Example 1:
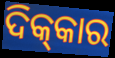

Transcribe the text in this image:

ଦିକ୍‌କାର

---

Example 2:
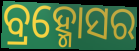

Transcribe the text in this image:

ବ୍ରହ୍ମୋସର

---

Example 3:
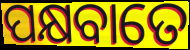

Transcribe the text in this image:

ପକ୍ଷବାତେ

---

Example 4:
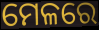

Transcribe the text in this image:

ମେଳରେ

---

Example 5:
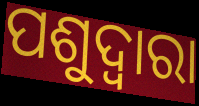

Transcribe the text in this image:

ପଶୁଦ୍ୱାରା